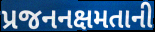
પ્રજનનક્ષમતાની